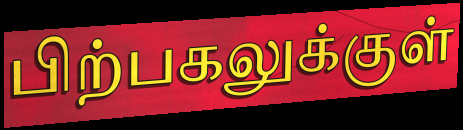
பிற்பகலுக்குள்